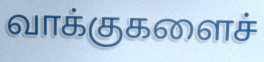
வாக்குகளைச்